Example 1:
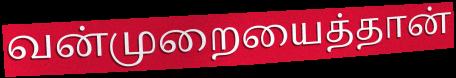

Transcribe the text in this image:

வன்முறையைத்தான்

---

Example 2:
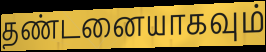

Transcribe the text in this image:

தண்டனையாகவும்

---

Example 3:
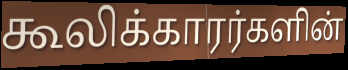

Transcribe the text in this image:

கூலிக்காரர்களின்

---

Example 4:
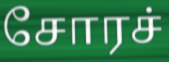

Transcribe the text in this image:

சோரச்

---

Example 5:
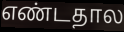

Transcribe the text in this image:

எண்டதால